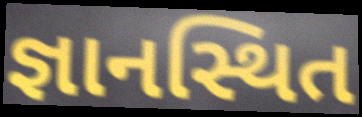
જ્ઞાનસ્થિત